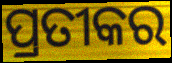
ପ୍ରତୀକର